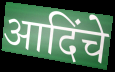
आदिंचे